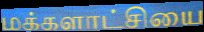
மக்களாட்சியை